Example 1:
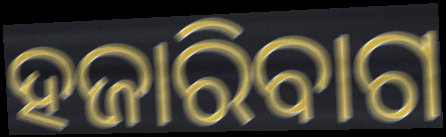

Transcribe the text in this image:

ହଜାରିବାଗ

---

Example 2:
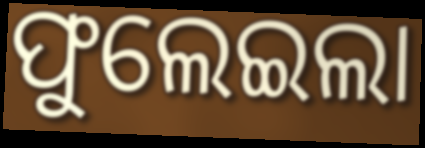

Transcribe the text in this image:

ଫୁଲେଇଲା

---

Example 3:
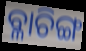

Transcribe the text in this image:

ବ୍ଳାଚିଙ୍ଗ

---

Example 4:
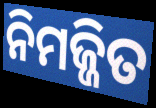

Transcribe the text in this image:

ନିମଜ୍ଜିତ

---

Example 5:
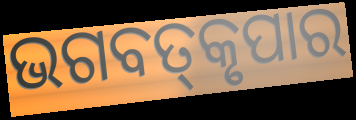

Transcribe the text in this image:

ଭଗବତ୍‌କୃପାର